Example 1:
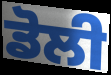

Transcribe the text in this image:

ਡੋਲੀ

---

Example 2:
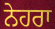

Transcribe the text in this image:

ਨੇਹਰਾ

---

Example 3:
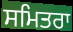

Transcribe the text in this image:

ਸਮਿਤਰਾ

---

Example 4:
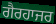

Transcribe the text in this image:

ਗੈਰਹਾਜਰ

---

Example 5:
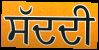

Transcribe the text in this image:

ਸੱਦਦੀ